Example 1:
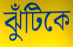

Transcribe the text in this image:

ঝুঁটিকে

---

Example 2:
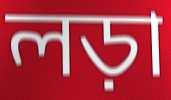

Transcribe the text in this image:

লড়া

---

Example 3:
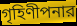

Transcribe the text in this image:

গৃহিণীপনার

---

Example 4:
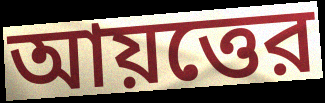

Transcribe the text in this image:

আয়ত্তের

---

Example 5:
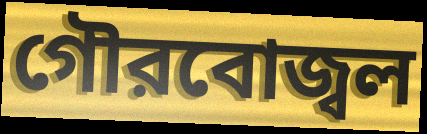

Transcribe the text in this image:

গৌরবোজ্বল